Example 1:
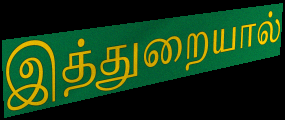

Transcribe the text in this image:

இத்துறையால்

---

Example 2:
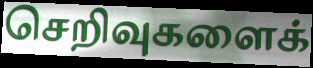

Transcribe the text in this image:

செறிவுகளைக்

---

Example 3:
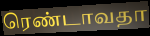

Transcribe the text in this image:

ரெண்டாவதா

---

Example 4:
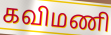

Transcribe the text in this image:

கவிமணி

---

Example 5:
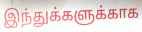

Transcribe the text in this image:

இந்துக்களுக்காக